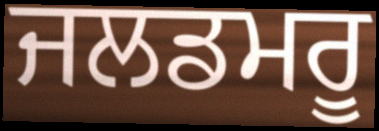
ਜਲਡਮਰੂ